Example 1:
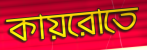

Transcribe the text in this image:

কায়রোতে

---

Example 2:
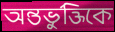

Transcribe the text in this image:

অন্তর্ভুক্তিকে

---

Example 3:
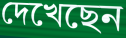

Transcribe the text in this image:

দেখেছেন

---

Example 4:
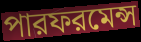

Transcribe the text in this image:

পারফরমেন্স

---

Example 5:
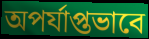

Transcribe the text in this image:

অপর্যাপ্তভাবে